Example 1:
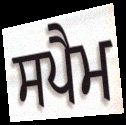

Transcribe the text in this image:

ਸਪੈਮ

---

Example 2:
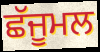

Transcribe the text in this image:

ਛੱਜੂਮਲ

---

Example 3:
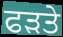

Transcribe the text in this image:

ਫੜਤੇ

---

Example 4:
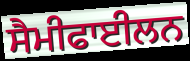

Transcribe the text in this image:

ਸੈਮੀਫਾਈਲਨ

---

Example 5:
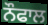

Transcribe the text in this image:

ਨੌਫਾਲ